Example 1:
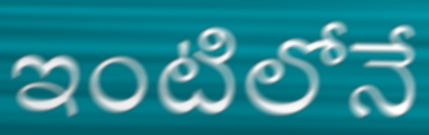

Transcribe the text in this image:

ఇంటిలోనే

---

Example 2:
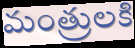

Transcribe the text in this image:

మంత్రులకి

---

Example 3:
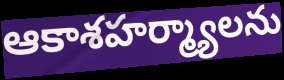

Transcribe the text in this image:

ఆకాశహర్మ్యాలను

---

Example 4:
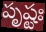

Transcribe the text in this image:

పృష్టః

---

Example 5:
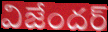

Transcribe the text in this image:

విజేందర్